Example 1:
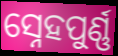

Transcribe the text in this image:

ସ୍ନେହପୁର୍ଣ୍ଣ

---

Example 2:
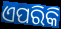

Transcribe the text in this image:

ଏପରିକି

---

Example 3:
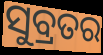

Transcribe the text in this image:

ସୁବ୍ରତର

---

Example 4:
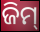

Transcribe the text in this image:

ଜିମ୍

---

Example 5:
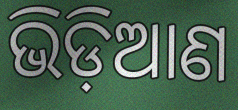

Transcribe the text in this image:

ଭିଡ଼ିଆଣ